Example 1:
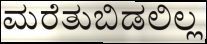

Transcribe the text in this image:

ಮರೆತುಬಿಡಲಿಲ್ಲ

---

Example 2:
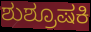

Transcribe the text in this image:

ಶುಶ್ರೂಷಕಿ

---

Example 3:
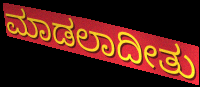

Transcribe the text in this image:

ಮಾಡಲಾದೀತು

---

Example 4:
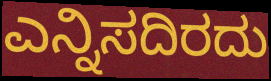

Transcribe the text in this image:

ಎನ್ನಿಸದಿರದು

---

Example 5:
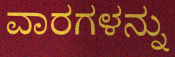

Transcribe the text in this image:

ವಾರಗಳನ್ನು